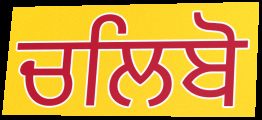
ਚਲਿਬੋ